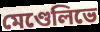
মেণ্ডেলিভে